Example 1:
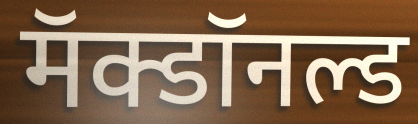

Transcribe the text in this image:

मॅक्डॉनल्ड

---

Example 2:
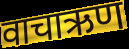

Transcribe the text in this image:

वाचाऋण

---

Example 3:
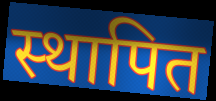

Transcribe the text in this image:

स्थापित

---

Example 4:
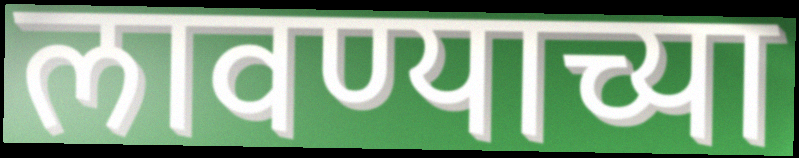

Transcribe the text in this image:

लावण्याच्या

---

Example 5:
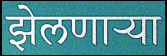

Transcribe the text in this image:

झेलणाऱ्या